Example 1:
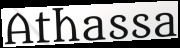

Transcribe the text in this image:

Athassa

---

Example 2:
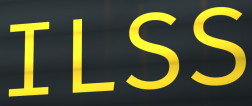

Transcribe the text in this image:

ILSS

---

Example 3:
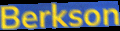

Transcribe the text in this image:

Berkson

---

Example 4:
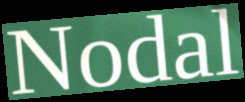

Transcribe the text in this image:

Nodal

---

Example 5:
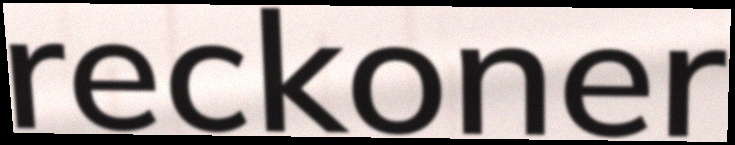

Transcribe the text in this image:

reckoner